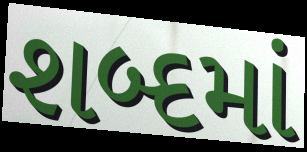
શબ્દમાં